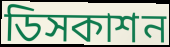
ডিসকাশন